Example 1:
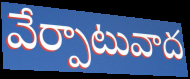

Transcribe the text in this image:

వేర్పాటువాద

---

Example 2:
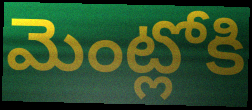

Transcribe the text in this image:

మెంట్లోకి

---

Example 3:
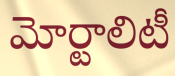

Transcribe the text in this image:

మోర్టాలిటీ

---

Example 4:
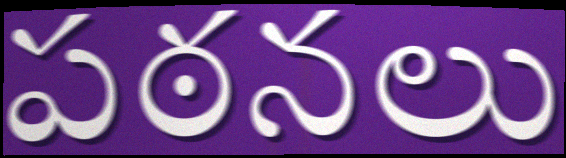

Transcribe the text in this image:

పఠనలు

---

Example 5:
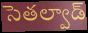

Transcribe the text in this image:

సెతల్వాడ్